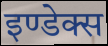
इण्डेक्स